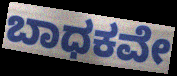
ಬಾಧಕವೇ